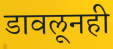
डावलूनही